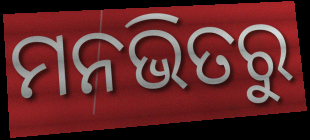
ମନଭିତରୁ